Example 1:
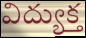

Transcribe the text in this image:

విద్యుక్త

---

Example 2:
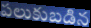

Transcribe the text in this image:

పలుకుబడిన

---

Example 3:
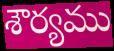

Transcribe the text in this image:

శౌర్యము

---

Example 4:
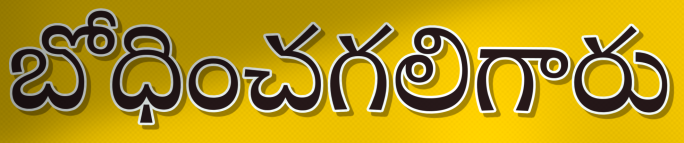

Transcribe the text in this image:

బోధించగలిగారు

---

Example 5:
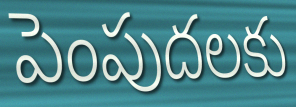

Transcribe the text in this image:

పెంపుదలకు